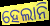
ହେଲାନି